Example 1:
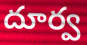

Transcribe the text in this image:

దూర్వ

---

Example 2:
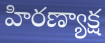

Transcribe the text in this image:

హిరణ్యాక్ష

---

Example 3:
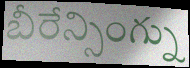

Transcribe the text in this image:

బీరేన్సింగ్ను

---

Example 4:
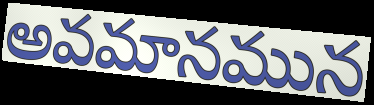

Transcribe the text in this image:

అవమానమున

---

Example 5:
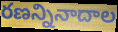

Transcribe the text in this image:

రణన్నినాదాల